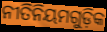
ନୀତିନିୟମଗୁଡ଼ିକ